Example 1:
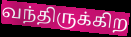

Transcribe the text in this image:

வந்திருக்கிற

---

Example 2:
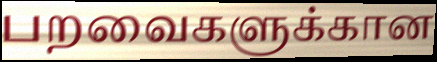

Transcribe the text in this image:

பறவைகளுக்கான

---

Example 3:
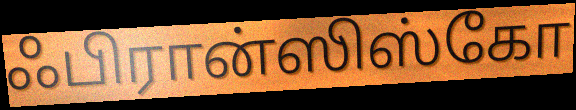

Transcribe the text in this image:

ஃபிரான்ஸிஸ்கோ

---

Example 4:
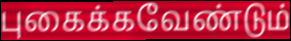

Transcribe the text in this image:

புகைக்கவேண்டும்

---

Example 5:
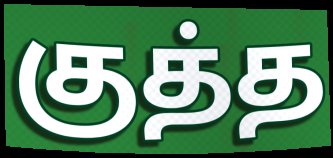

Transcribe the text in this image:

குத்த